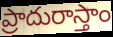
ప్రాదురాస్తాం